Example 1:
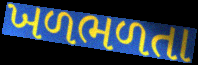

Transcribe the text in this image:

ખળભળતા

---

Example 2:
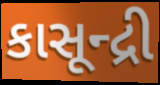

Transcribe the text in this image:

કાસૂન્દ્રી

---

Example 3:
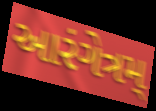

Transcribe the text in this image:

આરંગેત્રમ્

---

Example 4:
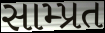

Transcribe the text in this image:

સામ્પ્રત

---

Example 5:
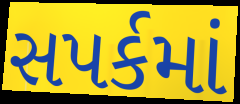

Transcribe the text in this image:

સપર્કમાં